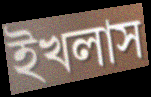
ইখলাস